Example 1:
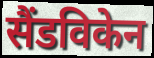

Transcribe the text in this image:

सैंडविकेन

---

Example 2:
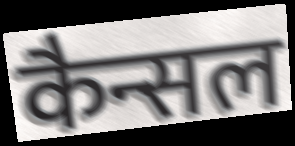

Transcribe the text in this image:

कैन्सल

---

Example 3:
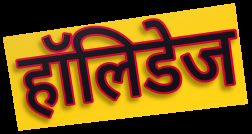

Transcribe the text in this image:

हॉलिडेज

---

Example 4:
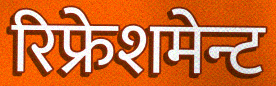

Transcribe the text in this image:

रिफ्रेशमेन्ट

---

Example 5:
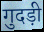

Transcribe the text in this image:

गुदड़ी